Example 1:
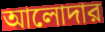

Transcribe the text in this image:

আলোদার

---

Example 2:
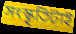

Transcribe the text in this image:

সংস্কৃতিটাই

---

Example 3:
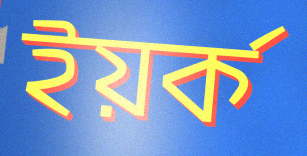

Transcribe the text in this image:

ইয়র্ক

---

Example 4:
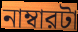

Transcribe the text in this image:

নাম্বারটা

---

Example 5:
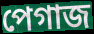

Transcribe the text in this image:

পেগাজ